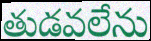
తుడవలేను